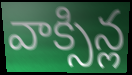
వాక్సిన్ల